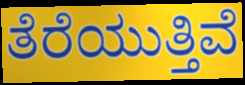
ತೆರೆಯುತ್ತಿವೆ